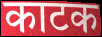
काटक